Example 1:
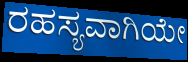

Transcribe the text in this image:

ರಹಸ್ಯವಾಗಿಯೇ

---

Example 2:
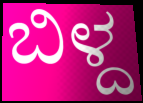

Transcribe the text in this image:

ಬಿಳ್ದ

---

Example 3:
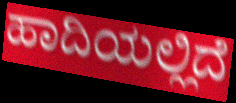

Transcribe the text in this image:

ಹಾದಿಯಲ್ಲಿದೆ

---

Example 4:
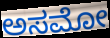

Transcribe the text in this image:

ಅಸಮೋ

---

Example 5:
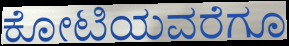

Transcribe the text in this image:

ಕೋಟಿಯವರೆಗೂ